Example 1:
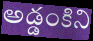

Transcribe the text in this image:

అడ్డంకిని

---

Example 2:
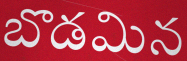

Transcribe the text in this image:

బొడమిన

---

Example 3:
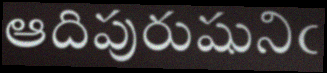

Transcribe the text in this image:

ఆదిపురుషునిఁ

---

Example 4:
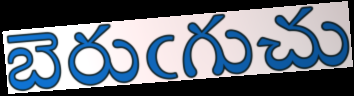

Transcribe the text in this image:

బెరుఁగుచు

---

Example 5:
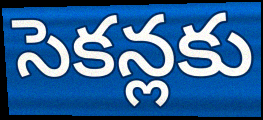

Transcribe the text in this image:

సెకన్లకు